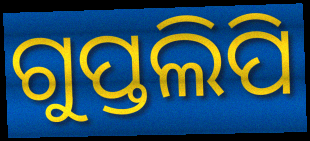
ଗୁପ୍ତଲିପି